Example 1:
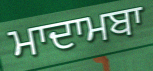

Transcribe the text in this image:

ਮਾਦਾਮਬਾ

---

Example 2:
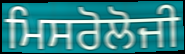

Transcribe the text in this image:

ਮਿਸਰੋਲੋਜੀ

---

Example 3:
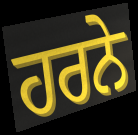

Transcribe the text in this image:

ਹਰਨੇ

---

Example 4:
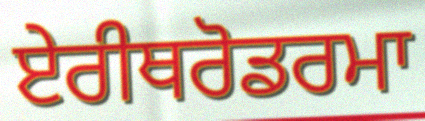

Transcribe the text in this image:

ਏਰੀਥਰੋਡਰਮਾ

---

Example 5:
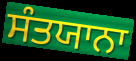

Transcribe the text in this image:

ਸੰਤਯਾਨਾ